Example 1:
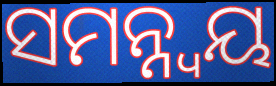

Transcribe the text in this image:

ସମନ୍ନ୍ୱୟ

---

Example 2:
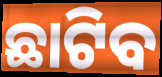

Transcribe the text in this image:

ଛାଟିବ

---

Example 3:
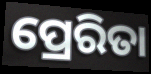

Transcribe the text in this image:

ପ୍ରେରିତା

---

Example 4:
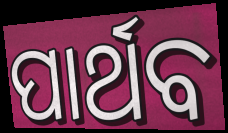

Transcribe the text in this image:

ପାର୍ଥବ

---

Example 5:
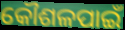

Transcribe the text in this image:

କୌଶଳପାଇଁ